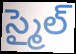
స్మైల్